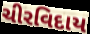
ચીરવિદાય